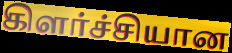
கிளர்ச்சியான